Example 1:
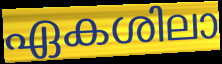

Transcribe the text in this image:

ഏകശിലാ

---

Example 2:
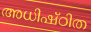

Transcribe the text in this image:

അധിഷ്ഠിത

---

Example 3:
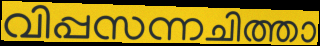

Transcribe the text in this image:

വിപ്പസന്നചിത്താ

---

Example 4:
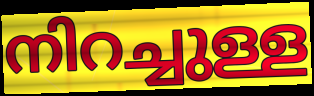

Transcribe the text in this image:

നിറച്ചുള്ള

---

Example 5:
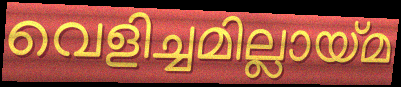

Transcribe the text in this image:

വെളിച്ചമില്ലായ്മ